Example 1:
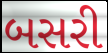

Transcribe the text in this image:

બસરી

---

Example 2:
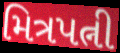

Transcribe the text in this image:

મિત્રપત્ની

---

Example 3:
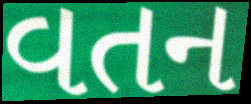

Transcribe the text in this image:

વતન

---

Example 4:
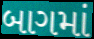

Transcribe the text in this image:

બાગમાં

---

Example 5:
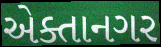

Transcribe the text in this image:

એક્તાનગર